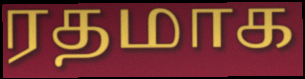
ரதமாக